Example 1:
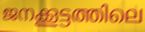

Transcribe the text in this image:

ജനക്കൂട്ടത്തിലെ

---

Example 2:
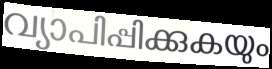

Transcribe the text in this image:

വ്യാപിപ്പിക്കുകയും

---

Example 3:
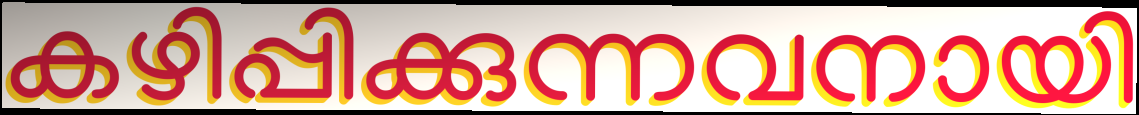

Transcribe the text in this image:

കഴിപ്പിക്കുന്നവനായി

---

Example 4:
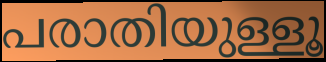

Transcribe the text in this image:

പരാതിയുള്ളൂ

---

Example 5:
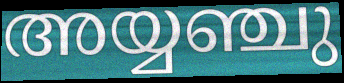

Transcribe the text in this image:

അയ്യഞ്ചു